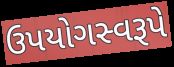
ઉપયોગસ્વરૂપે